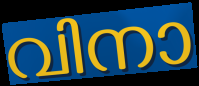
വിനാ